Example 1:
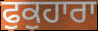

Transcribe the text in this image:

ਫੁਕੁਹਾਰਾ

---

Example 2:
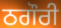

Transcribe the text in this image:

ਠਗੌਰੀ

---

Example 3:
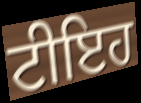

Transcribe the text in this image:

ਟੀਇਹ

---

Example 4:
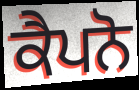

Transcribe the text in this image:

ਕੈਪਨੋ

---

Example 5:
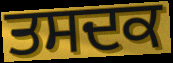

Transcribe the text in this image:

ਤਸਦਕ